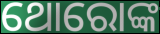
ଥୋରୋଙ୍କ